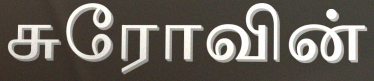
சுரோவின்